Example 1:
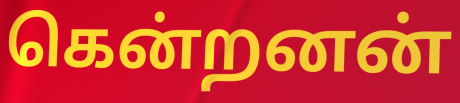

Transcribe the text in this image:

கென்றனன்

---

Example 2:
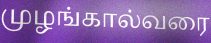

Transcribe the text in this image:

முழங்கால்வரை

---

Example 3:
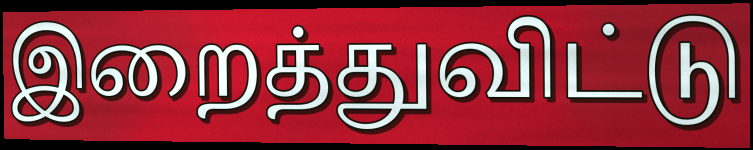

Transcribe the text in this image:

இறைத்துவிட்டு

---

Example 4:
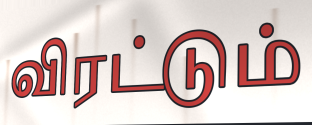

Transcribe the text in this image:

விரட்டும்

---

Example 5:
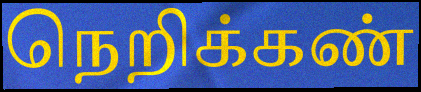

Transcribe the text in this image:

நெறிக்கண்